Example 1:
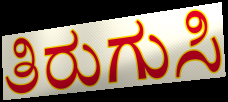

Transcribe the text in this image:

ತಿರುಗುಸಿ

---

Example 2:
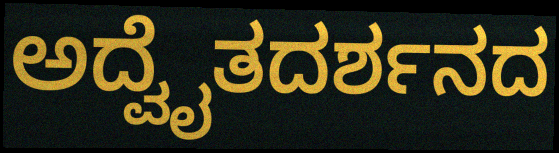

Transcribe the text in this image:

ಅದ್ವೈತದರ್ಶನದ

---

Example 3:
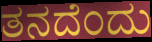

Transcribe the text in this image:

ತನದೆಂದು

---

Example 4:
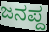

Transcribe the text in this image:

ಜನಪ್ದ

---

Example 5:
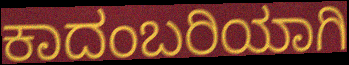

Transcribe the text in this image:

ಕಾದಂಬರಿಯಾಗಿ